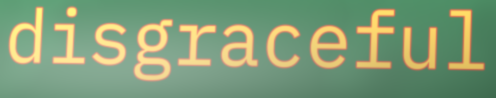
disgraceful